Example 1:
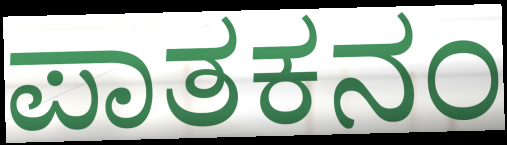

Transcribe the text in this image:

ಪಾತಕನಂ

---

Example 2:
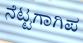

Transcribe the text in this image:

ನೆಟ್ಟಗಾಗಿಪ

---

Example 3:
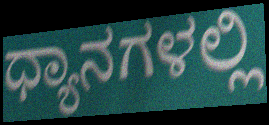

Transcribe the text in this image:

ಧ್ಯಾನಗಳಲ್ಲಿ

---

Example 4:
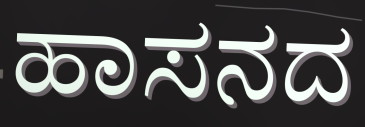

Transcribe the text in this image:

ಹಾಸನದ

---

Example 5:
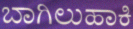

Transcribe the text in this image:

ಬಾಗಿಲುಹಾಕಿ